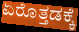
ಏರೊತ್ತಡಕ್ಕೆ